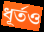
ধূর্তও